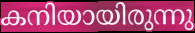
കനിയായിരുന്നു